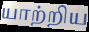
யாற்றிய